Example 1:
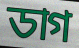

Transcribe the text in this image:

ডাগ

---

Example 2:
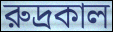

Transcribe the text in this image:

রুদ্রকাল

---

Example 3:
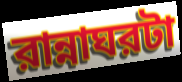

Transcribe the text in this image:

রান্নাঘরটা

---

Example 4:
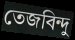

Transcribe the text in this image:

তেজবিন্দু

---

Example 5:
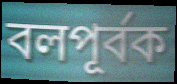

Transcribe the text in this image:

বলপূর্বক